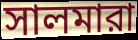
সালমারা